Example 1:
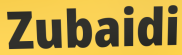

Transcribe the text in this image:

Zubaidi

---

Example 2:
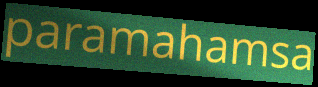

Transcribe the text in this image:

paramahamsa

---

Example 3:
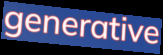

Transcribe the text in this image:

generative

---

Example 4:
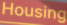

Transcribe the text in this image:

Housing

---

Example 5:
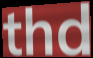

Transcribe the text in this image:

thd